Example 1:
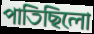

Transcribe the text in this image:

পাতিছিলো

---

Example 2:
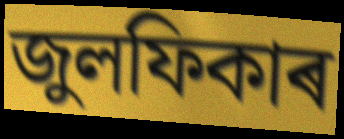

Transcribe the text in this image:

জুলফিকাৰ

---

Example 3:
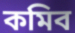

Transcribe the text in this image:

কমিব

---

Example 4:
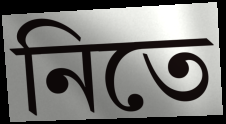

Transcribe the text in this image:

নিতে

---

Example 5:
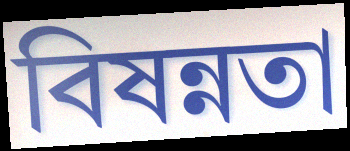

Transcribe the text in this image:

বিষন্নতা